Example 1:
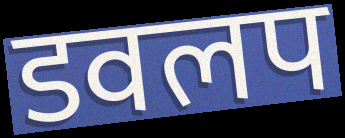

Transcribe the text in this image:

डवलप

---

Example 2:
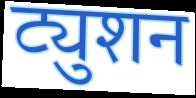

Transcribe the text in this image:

ट्युशन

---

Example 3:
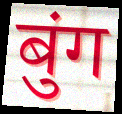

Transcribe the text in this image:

बुंग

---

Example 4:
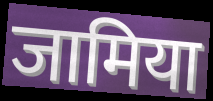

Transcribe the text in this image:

जामिया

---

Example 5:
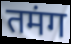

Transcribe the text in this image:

तमंग